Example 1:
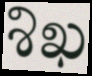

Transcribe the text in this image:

శిఖ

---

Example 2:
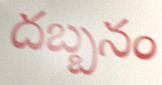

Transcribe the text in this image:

దబ్బనం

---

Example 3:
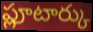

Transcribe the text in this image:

ప్లూటార్కు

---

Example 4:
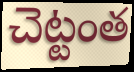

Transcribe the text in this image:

చెట్టంత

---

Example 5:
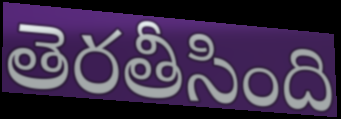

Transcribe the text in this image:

తెరతీసింది